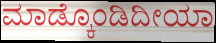
ಮಾಡ್ಕೊಂಡಿದೀಯಾ